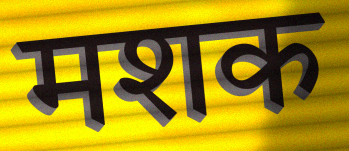
मशक